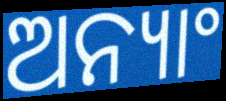
ଅନ୍ୟାଂ